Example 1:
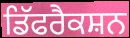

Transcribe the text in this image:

ਡਿੱਫਰੈਕਸ਼ਨ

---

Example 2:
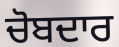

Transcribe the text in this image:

ਚੋਬਦਾਰ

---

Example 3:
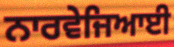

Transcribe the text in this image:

ਨਾਰਵੇਜਿਆਈ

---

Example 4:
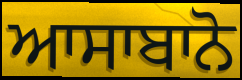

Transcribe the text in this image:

ਆਸਾਬਾਨੋ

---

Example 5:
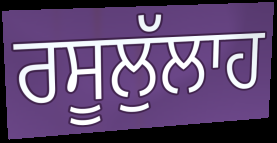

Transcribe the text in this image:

ਰਸੂਲੁੱਲਾਹ